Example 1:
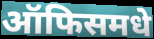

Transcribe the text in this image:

ऑफिसमधे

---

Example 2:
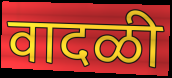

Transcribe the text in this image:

वादळी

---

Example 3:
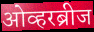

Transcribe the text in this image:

ओव्हरब्रीज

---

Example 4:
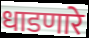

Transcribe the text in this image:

धाडणारे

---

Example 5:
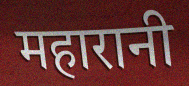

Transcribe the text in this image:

महारानी